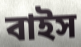
বাইস